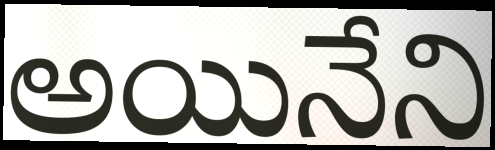
అయినేని